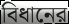
বিধানের